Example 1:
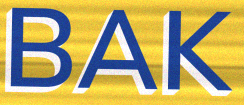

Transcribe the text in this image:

BAK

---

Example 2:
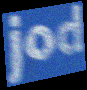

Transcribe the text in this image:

jod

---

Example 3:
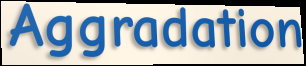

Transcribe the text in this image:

Aggradation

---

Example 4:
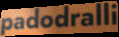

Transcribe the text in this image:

padodralli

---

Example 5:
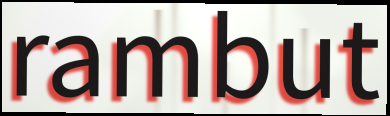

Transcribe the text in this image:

rambut